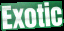
Exotic